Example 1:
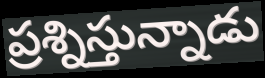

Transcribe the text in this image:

ప్రశ్నిస్తున్నాడు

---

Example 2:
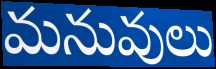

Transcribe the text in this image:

మనువులు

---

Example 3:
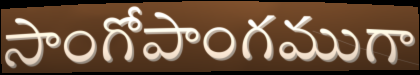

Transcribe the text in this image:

సాంగోపాంగముగా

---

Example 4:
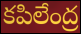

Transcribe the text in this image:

కపిలేంద్ర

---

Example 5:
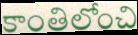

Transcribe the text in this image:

కాంతిలోంచి